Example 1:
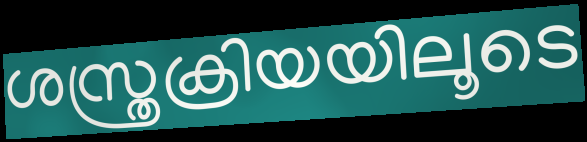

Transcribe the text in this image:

ശസ്ത്രക്രിയയിലൂടെ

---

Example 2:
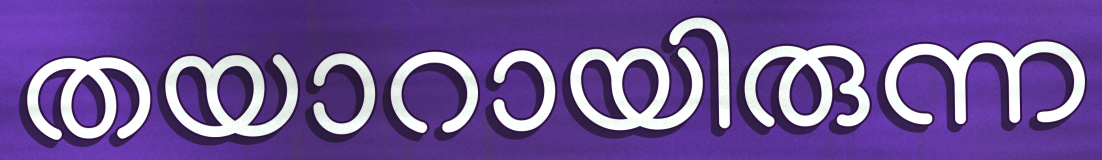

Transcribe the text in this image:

തയാറായിരുന്ന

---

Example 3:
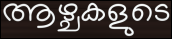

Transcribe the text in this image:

ആഴ്ചകളുടെ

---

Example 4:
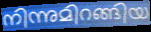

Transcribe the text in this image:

നിന്നുമിറങ്ങിയ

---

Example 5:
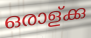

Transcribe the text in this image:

ഒരാള്ക്കു